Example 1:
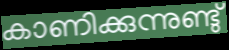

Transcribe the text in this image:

കാണിക്കുന്നുണ്ടു്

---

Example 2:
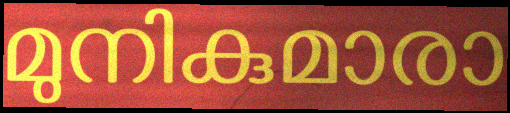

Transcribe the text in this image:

മുനികുമാരാ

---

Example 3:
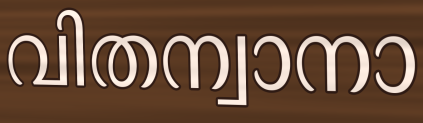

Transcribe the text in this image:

വിതന്വാനാ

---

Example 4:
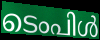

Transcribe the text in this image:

ടെംപിൾ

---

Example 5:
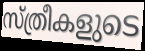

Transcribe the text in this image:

സ്ത്രീകളുടെ